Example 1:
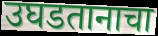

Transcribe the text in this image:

उघडतानाचा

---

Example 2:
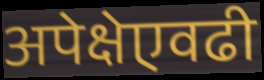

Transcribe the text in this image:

अपेक्षेएवढी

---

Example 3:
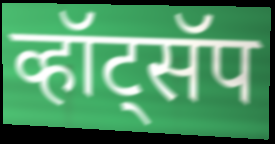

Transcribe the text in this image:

व्हॉट्सॅप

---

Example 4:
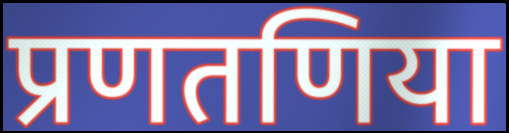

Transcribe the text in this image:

प्रणतणिया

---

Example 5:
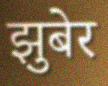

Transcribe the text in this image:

झुबेर